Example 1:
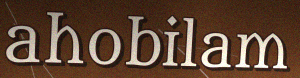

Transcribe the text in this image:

ahobilam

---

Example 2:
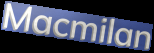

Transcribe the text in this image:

Macmilan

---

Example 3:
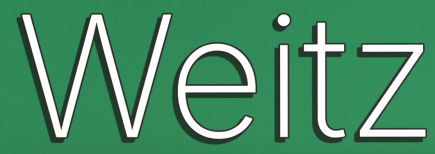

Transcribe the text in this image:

Weitz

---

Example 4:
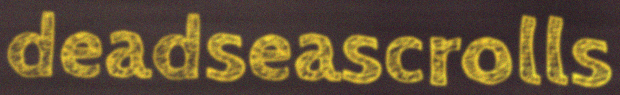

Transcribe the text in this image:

deadseascrolls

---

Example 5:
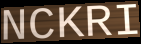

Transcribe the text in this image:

NCKRI